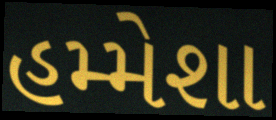
હમ્મેશા